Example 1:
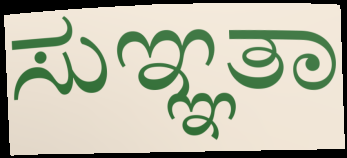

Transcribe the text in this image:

ಸುಞ್ಞತಾ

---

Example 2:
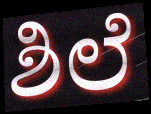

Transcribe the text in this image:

ಶಿಲೆ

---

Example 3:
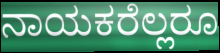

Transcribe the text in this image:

ನಾಯಕರೆಲ್ಲರೂ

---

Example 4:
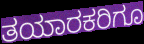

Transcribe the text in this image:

ತಯಾರಕರಿಗೂ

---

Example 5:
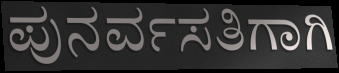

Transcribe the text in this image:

ಪುನರ್ವಸತಿಗಾಗಿ